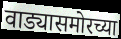
वाड्यासमोरच्या